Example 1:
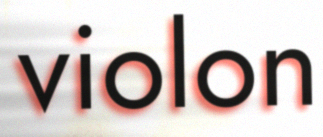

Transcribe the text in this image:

violon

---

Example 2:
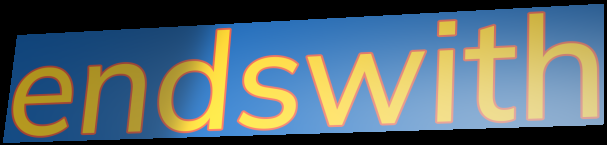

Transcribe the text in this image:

endswith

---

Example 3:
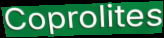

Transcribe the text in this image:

Coprolites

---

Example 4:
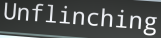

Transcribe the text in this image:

Unflinching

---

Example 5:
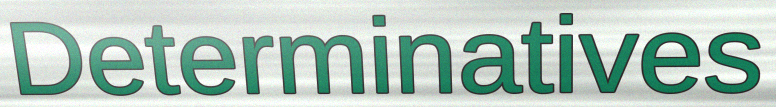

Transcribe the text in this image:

Determinatives